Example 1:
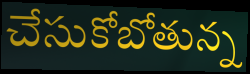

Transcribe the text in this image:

చేసుకోబోతున్న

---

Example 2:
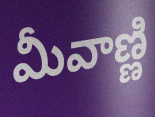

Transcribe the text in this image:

మీవాణ్ణి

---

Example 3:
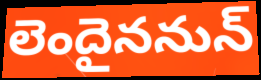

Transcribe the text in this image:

లెందైననున్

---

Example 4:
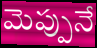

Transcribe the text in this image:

మెప్పునే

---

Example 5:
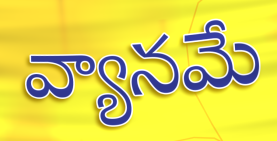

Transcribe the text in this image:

వ్యానమే